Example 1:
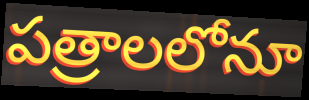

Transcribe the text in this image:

పత్రాలలోనూ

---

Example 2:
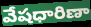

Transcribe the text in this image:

వేషధారిణా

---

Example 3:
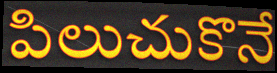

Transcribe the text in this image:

పిలుచుకొనే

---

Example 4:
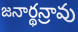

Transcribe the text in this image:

జనార్థన్రావు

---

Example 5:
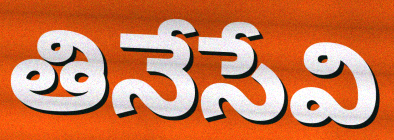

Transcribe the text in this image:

తినేసేవి